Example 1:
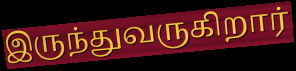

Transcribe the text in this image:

இருந்துவருகிறார்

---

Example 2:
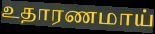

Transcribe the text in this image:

உதாரணமாய்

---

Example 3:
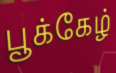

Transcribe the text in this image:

பூக்கேழ்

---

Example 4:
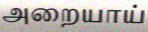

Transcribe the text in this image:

அறையாய்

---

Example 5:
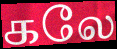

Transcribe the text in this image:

கலே